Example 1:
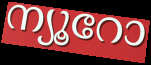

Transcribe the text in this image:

ന്യൂറോ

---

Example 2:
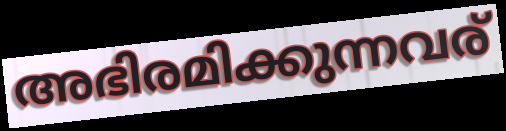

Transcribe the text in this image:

അഭിരമിക്കുന്നവര്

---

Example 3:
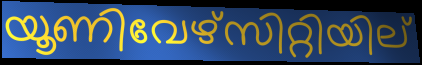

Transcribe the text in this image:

യൂണിവേഴ്സിറ്റിയില്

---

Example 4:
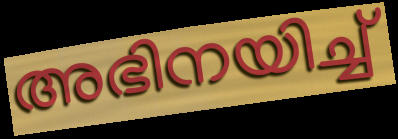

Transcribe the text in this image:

അഭിനയിച്ച്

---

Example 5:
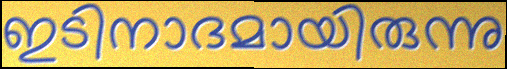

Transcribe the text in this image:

ഇടിനാദമായിരുന്നു